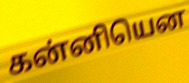
கன்னியென